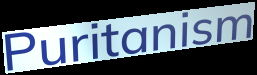
Puritanism